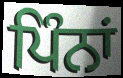
ਪਿੰਨਾਂ